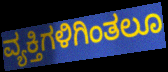
ವ್ಯಕ್ತಿಗಳಿಗಿಂತಲೂ